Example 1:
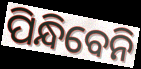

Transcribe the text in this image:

ପିନ୍ଧିବେନି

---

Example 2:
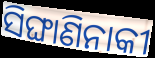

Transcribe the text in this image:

ସିଙ୍ଘାଣିନାକୀ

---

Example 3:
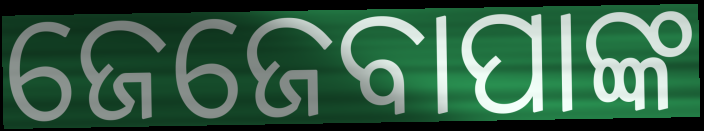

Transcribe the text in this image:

ଜେଜେବାପାଙ୍କ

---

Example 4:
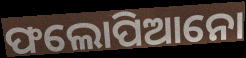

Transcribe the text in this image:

ଫଲୋପିଆନୋ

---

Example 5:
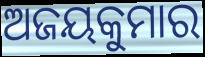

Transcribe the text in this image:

ଅଜୟକୁମାର